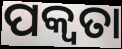
ପକ୍ୱତା